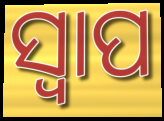
ସ୍ବାପ